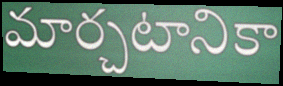
మార్చటానికా